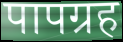
पापग्रह